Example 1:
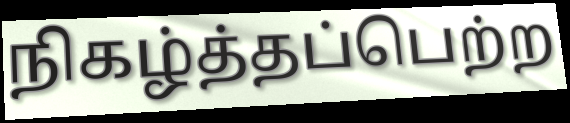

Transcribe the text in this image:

நிகழ்த்தப்பெற்ற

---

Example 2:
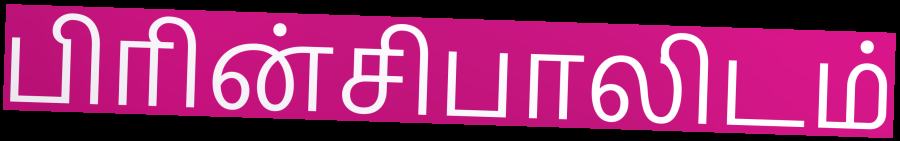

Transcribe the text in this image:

பிரின்சிபாலிடம்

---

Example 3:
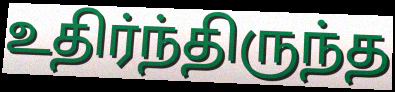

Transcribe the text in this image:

உதிர்ந்திருந்த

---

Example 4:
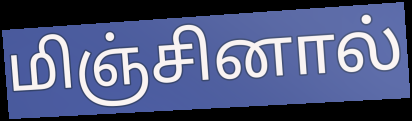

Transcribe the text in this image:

மிஞ்சினால்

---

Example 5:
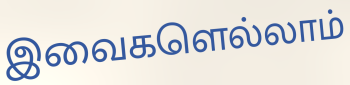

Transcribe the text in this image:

இவைகளெல்லாம்